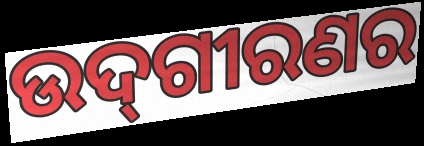
ଉଦ୍‌ଗୀରଣର